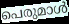
പെരുമാൾ